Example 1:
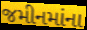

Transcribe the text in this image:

જમીનમાંના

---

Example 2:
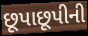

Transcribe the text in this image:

છૂપાછૂપીની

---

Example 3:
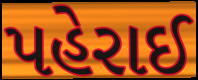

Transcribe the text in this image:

પહેરાઈ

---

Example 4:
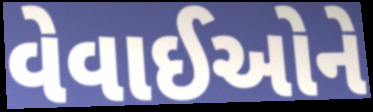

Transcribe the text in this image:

વેવાઈઓને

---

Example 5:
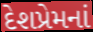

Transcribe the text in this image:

દેશપ્રેમનાં